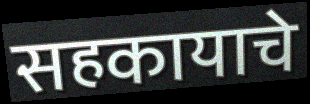
सहकायाचे